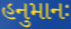
હનુમાનઃ